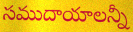
సముదాయాలన్నీ